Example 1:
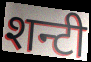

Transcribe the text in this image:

शन्टी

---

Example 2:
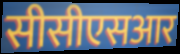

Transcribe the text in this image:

सीसीएसआर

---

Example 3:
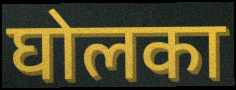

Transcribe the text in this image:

घोलका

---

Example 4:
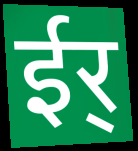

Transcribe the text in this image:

ईर्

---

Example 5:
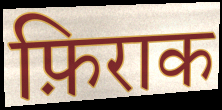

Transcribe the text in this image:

फ़िराक